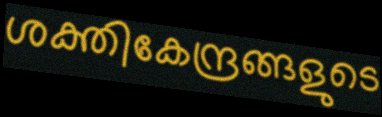
ശക്തികേന്ദ്രങ്ങളുടെ